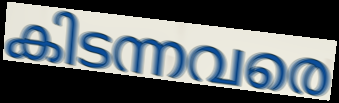
കിടന്നവരെ